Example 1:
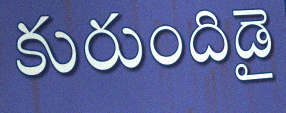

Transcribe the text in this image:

కురుందిడై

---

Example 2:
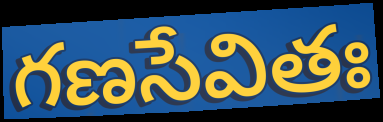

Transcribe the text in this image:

గణసేవితః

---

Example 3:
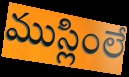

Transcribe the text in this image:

ముస్లింలే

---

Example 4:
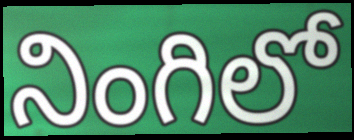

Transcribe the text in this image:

నింగిలో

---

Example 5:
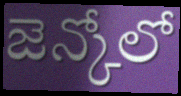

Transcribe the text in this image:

జెన్కోలో